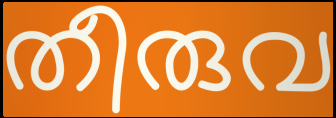
തീരുവ